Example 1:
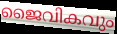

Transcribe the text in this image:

ജൈവികവും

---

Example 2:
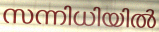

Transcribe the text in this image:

സന്നിധിയിൽ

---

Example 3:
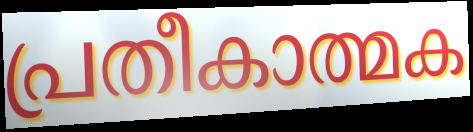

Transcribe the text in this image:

പ്രതീകാത്മക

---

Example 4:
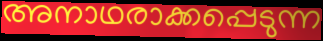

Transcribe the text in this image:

അനാഥരാക്കപ്പെടുന്ന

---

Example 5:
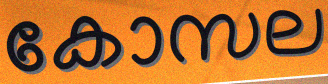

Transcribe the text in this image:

കോസല